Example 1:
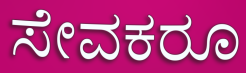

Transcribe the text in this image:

ಸೇವಕರೂ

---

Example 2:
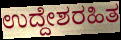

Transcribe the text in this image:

ಉದ್ದೇಶರಹಿತ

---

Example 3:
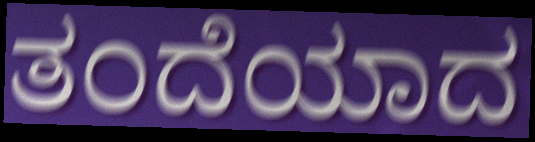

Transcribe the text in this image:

ತಂದೆಯಾದ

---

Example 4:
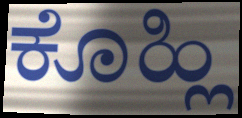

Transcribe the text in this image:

ಕೊಹ್ಲಿ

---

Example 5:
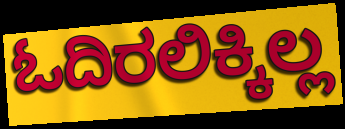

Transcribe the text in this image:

ಓದಿರಲಿಕ್ಕಿಲ್ಲ